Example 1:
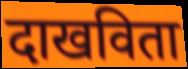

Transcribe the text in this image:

दाखविता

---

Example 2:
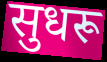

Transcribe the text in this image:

सुधरू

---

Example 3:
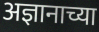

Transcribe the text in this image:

अज्ञानाच्या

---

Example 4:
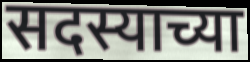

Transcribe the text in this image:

सदस्याच्या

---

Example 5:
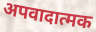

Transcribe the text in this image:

अपवादात्मक